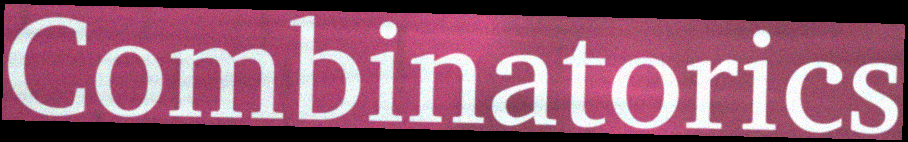
Combinatorics